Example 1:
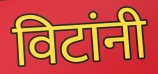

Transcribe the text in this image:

विटांनी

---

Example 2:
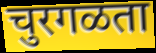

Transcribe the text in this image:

चुरगळता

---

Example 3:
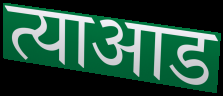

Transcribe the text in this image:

त्याआड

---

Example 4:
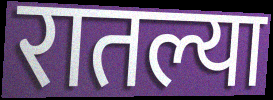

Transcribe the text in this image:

रातल्या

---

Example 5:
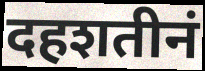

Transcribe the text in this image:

दहशतीनं